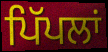
ਪਿੱਪਲਾਂ